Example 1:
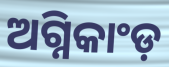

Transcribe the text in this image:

ଅଗ୍ନିକାଂଡ଼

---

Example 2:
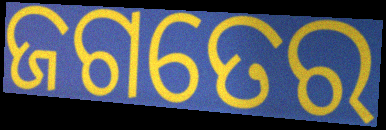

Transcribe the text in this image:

ଜଗତେର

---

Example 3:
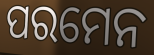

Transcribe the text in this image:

ପରମେନ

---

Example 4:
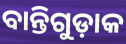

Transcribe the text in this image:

ବାନ୍ତିଗୁଡ଼ାକ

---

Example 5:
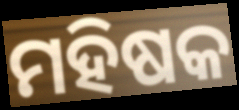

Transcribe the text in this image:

ମହିଷକ